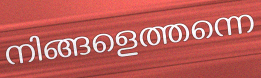
നിങ്ങളെത്തന്നെ